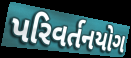
પરિવર્તનયોગ